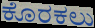
ಕೊರಕಲು